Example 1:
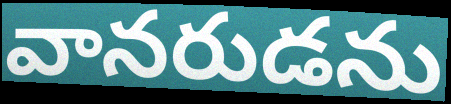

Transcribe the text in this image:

వానరుడను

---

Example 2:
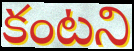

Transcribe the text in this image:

కంటని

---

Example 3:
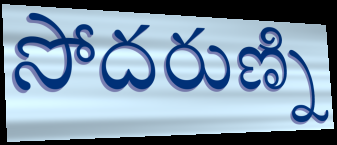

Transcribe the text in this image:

సోదరుణ్ని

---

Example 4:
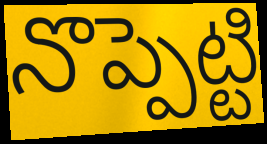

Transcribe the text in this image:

నొప్పెట్టి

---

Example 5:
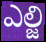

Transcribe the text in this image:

ఎల్జి